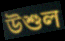
উশুল